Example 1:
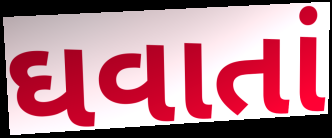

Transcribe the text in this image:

ઘવાતાં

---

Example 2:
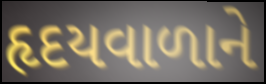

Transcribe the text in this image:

હૃદયવાળાને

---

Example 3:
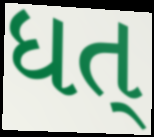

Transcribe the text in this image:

ધત્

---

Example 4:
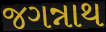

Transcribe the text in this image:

જગન્નાથ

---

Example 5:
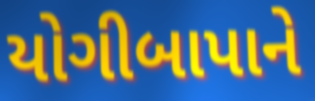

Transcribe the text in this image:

યોગીબાપાને